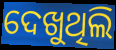
ଦେଖୁଥିଲି